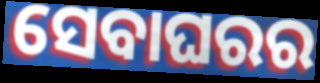
ସେବାଘରର